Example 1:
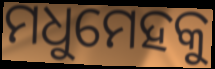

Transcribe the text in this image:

ମଧୁମେହକୁ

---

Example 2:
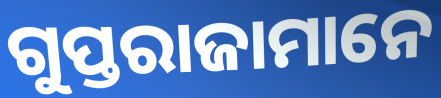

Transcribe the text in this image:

ଗୁପ୍ତରାଜାମାନେ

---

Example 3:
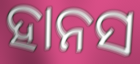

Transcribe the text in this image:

ହାନସ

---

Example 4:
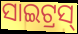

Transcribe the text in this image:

ସାଇଟ୍ରସ୍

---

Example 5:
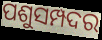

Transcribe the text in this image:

ପଶୁସମ୍ପଦର